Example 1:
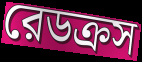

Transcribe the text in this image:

রেডক্রস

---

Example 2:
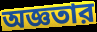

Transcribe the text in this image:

অজ্ঞতার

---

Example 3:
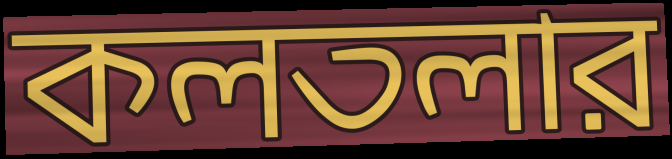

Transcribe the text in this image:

কলতলার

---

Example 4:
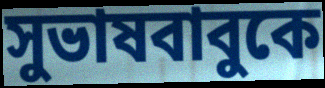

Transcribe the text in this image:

সুভাষবাবুকে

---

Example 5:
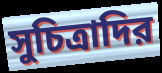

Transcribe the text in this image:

সুচিত্রাদির